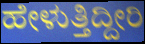
ಹೇಳುತ್ತಿದ್ದೀರಿ